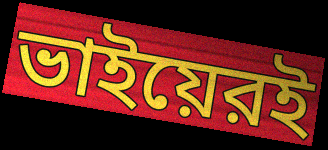
ভাইয়েরই